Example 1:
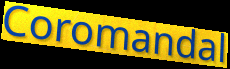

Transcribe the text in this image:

Coromandal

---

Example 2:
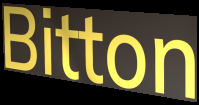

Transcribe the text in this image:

Bitton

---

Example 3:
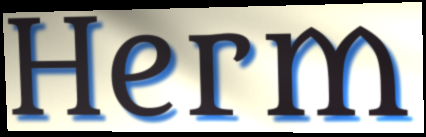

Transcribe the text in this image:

Herm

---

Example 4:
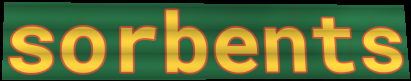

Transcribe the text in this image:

sorbents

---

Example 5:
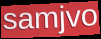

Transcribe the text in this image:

samjvo